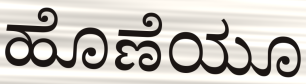
ಹೊಣೆಯೂ